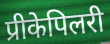
प्रीकेपिलरी